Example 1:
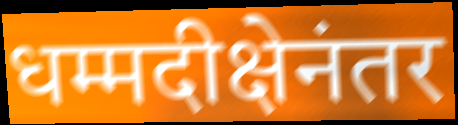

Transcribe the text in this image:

धम्मदीक्षेनंतर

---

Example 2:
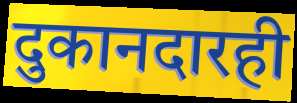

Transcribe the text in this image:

दुकानदारही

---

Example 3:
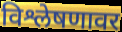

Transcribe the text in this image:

विश्लेषणावर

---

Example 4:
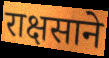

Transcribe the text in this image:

राक्षसाने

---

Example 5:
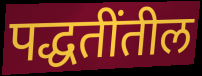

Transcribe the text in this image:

पद्धतींतील